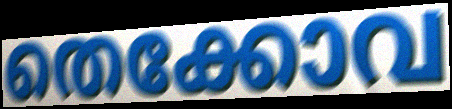
തെക്കോവ